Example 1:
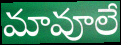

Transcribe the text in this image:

మావూలే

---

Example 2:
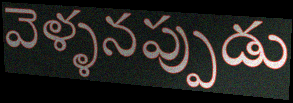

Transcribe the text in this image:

వెళ్ళనప్పుడు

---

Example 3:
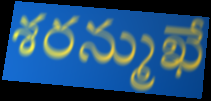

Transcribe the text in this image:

శరన్ముఖే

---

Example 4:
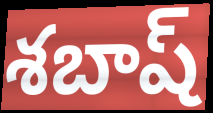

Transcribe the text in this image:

శబాష్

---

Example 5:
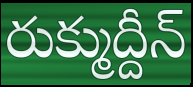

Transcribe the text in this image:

రుక్ముద్దీన్